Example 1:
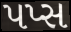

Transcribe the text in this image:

પપ્સ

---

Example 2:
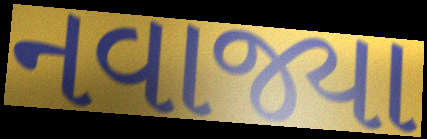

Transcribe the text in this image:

નવાજ્યા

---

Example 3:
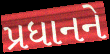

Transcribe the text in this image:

પ્રધાનને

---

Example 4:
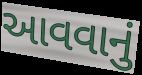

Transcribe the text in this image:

આવવાનું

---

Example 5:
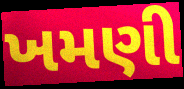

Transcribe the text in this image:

ખમણી